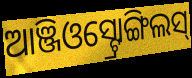
ଆଞ୍ଜିଓସ୍ଟ୍ରୋଙ୍ଗିଲସ୍